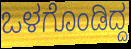
ಒಳಗೊಂಡಿದ್ದ